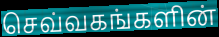
செவ்வகங்களின்